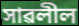
সাৱলীল